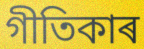
গীতিকাৰ